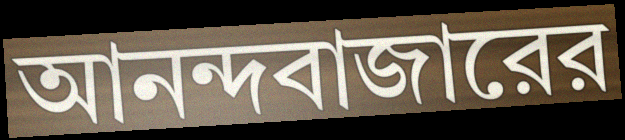
আনন্দবাজারের